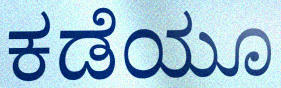
ಕಡೆಯೂ